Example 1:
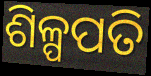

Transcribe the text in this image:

ଶିଳ୍ପପତି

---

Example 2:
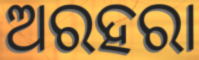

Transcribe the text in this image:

ଅରହରା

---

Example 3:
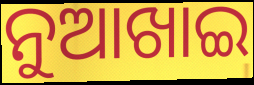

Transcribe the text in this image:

ନୁଆଖାଇ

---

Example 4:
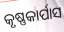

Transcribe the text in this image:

କୃଷ୍ଣକାର୍ପାସ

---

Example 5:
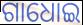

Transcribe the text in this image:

ଗାଧୋଇ